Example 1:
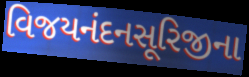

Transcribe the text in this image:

વિજયનંદનસૂરિજીના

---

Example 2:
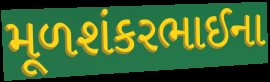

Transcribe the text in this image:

મૂળશંકરભાઈના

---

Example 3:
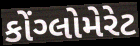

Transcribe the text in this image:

કોંગ્લોમેરેટ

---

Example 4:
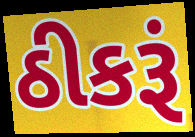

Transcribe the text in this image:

ઠીકરૂં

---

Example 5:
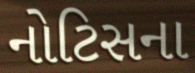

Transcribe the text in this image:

નોટિસના